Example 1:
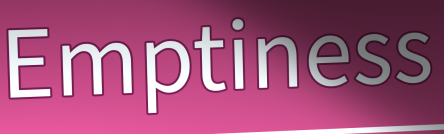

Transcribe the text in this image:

Emptiness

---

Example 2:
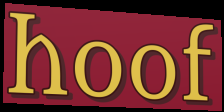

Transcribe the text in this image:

hoof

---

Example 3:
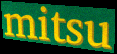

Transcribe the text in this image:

mitsu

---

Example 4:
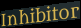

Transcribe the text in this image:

Inhibitor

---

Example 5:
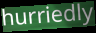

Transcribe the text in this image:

hurriedly